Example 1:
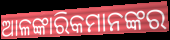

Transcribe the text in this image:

ଆଳଙ୍କାରିକମାନଙ୍କର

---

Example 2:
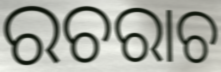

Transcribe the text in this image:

ରଚରାଚ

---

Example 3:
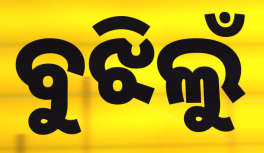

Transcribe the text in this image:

ବୁଝିଲୁଁ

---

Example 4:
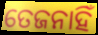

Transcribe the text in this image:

ତେଜନାହିଁ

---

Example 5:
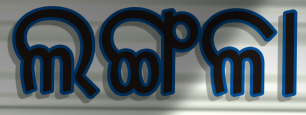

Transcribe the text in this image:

ଲଙ୍ଗଳା